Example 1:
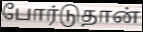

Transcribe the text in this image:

போர்டுதான்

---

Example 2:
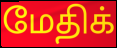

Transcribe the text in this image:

மேதிக்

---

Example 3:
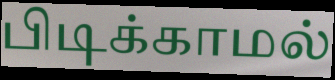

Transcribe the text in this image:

பிடிக்காமல்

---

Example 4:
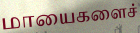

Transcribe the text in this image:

மாயைகளைச்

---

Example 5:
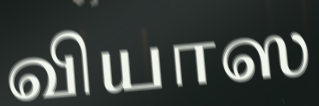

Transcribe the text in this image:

வியாஸ